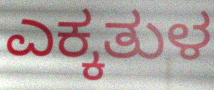
ಎಕ್ಕತುಳ